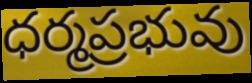
ధర్మప్రభువు